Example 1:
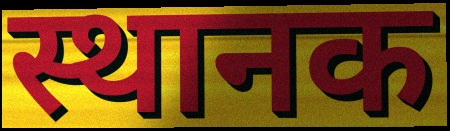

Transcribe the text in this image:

स्थानक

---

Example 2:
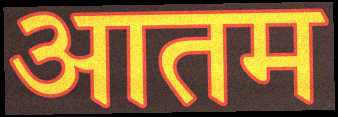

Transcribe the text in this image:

आतम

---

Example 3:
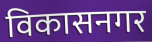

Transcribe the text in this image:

विकासनगर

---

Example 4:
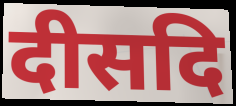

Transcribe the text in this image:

दीसदि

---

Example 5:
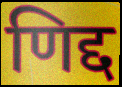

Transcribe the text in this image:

णिद्द